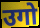
उगो